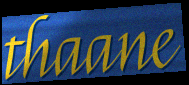
thaane